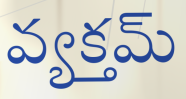
వ్యక్తమ్